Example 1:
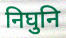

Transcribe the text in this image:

निघुनि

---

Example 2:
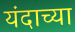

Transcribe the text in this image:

यंदाच्या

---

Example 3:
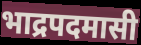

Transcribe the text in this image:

भाद्रपदमासी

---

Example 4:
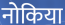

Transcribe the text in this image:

नोकिया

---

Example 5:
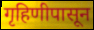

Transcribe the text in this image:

गृहिणीपासून